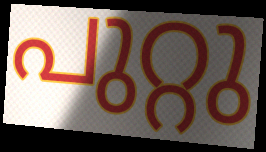
പുറ്റു